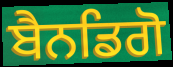
ਬੈਨਡਿਗੋ